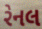
રેનલ